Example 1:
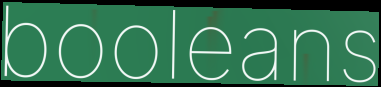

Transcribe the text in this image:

booleans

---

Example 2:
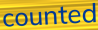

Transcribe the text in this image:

counted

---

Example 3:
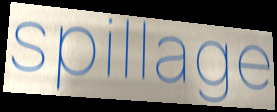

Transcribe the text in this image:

spillage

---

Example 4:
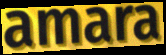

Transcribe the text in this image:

amara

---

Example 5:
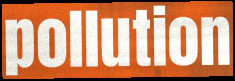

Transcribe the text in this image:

pollution